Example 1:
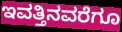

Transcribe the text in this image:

ಇವತ್ತಿನವರೆಗೂ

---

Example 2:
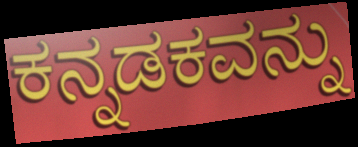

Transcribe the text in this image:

ಕನ್ನಡಕವನ್ನು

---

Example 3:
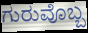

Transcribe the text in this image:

ಗುರುವೊಬ್ಬ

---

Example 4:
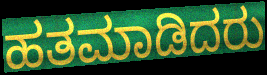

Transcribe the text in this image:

ಹತಮಾಡಿದರು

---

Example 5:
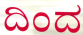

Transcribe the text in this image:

ದಿಂದ